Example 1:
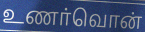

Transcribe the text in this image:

உணர்வொன்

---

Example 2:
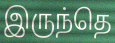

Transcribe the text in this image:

இருந்தெ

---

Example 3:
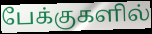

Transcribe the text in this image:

பேக்குகளில்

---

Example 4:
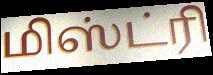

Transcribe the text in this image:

மிஸ்ட்ரி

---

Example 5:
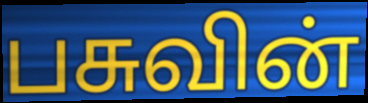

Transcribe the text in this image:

பசுவின்